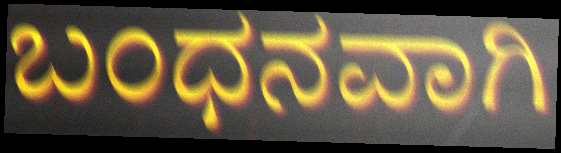
ಬಂಧನವಾಗಿ